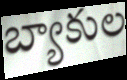
బ్యాకుల